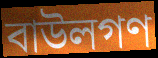
বাউলগণ